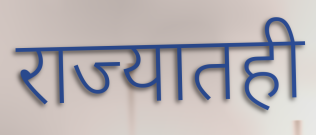
राज्यातही